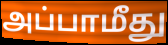
அப்பாமீது